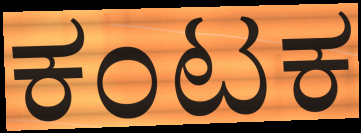
ಕಂಟಕ